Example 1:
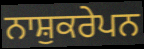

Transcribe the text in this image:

ਨਾਸ਼ੁਕਰੇਪਨ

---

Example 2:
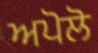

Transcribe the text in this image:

ਅਪੋਲੋ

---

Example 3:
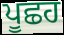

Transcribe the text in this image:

ਪੂਛਹ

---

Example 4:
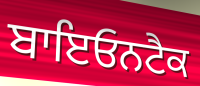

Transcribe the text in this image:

ਬਾਇਓਨਟੈਕ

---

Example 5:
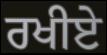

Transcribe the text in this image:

ਰਖੀਏ